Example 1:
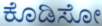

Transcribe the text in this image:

ಕೊಡಿಸೋ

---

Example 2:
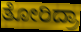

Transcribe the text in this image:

ತೋರಿದ್ರಾ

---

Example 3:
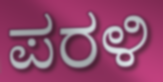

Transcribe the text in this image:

ಪರಳಿ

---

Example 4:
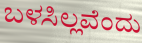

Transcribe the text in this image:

ಬಳಸಿಲ್ಲವೆಂದು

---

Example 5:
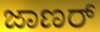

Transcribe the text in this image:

ಜಾಣರ್